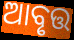
ଆବୃତ୍ତ